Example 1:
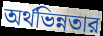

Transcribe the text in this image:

অর্থভিন্নতার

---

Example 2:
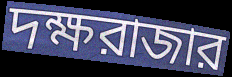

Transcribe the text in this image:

দক্ষরাজার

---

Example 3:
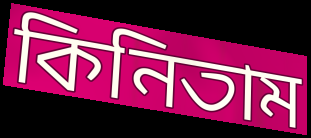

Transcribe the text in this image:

কিনিতাম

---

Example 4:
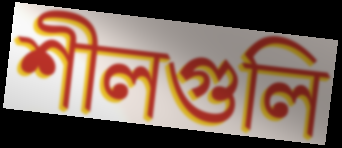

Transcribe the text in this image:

শীলগুলি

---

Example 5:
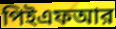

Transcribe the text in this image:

পিইএফআর